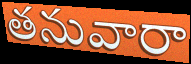
తనువారా